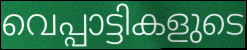
വെപ്പാട്ടികളുടെ